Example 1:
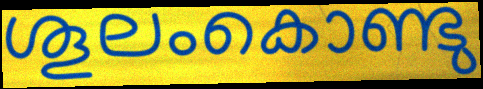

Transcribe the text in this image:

ശൂലംകൊണ്ടു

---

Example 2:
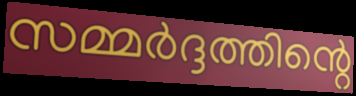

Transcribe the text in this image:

സമ്മർദ്ദത്തിന്റെ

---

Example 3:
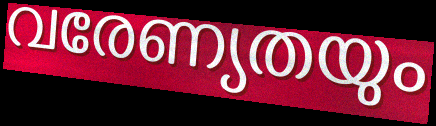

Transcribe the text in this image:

വരേണ്യതയും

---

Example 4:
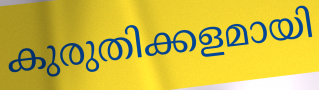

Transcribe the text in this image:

കുരുതിക്കളമായി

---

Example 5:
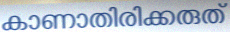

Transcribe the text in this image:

കാണാതിരിക്കരുത്